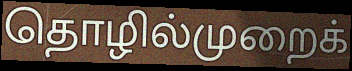
தொழில்முறைக்